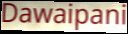
Dawaipani